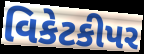
વિકેટકીપર